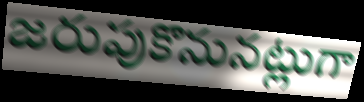
జరుపుకొనునట్లుగా